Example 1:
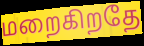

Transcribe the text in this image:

மறைகிறதே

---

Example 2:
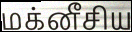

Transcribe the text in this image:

மக்னீசிய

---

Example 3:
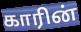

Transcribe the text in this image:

காரின்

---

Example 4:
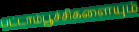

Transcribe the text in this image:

பட்டாம்பூச்சிகளையும்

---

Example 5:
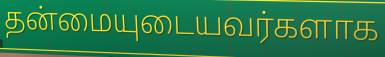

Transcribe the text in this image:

தன்மையுடையவர்களாக